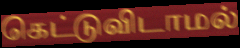
கெட்டுவிடாமல்